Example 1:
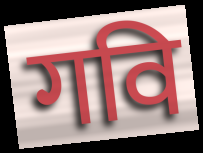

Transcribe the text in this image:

गवि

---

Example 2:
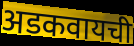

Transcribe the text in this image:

अडकवायची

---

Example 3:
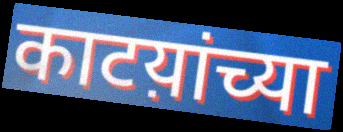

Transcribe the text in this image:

काटय़ांच्या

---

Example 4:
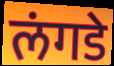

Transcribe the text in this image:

लंगडे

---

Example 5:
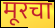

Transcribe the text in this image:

मूरचा